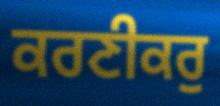
ਕਰਣੀਕਰੁ